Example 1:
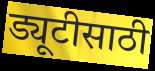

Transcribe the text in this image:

ड्यूटीसाठी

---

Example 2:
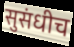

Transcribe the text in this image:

सुसंधीच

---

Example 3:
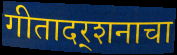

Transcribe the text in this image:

गीतादर्शनाचा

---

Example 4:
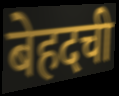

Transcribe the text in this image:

बेहदची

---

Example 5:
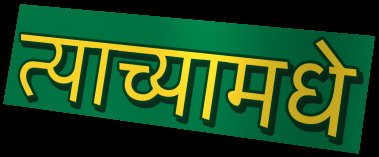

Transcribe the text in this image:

त्याच्यामधे